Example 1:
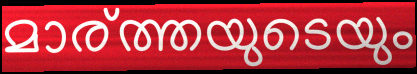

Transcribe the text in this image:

മാര്ത്തയുടെയും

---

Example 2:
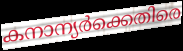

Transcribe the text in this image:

കനാന്യർക്കെതിരെ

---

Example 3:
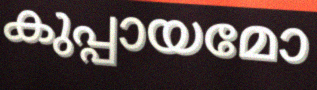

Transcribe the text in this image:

കുപ്പായമോ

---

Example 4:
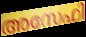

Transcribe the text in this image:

അസേഫി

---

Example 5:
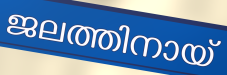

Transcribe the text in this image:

ജലത്തിനായ്